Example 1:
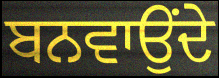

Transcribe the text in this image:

ਬਨਵਾਉਂਦੇ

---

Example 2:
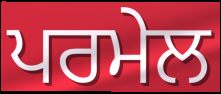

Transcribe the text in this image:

ਪਰਮੇਲ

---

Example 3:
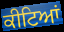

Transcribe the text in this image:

ਕੀਟਿਆਂ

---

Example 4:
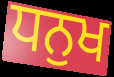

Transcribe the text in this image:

ਧਨੁਖ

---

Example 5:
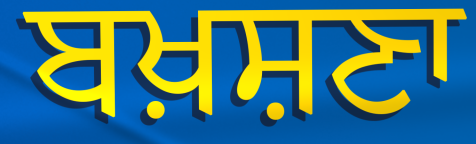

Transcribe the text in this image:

ਬਖ਼ਸ਼ਣਾ